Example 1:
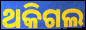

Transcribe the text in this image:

ଥକିଗଲ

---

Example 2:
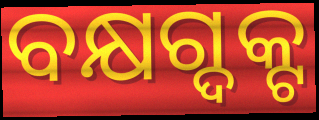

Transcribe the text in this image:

ବକ୍ଷଗ୍ଦକ୍ଟ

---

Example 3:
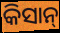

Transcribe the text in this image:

କିସାନ୍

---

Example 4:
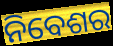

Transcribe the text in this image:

ନିବେଶର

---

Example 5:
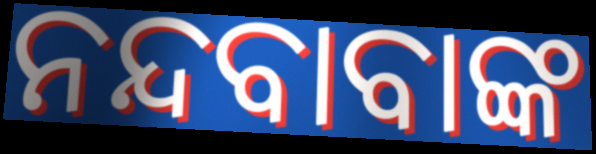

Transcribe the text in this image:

ନନ୍ଦବାବାଙ୍କ